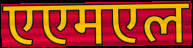
एएमएल